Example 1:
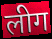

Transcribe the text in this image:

लीग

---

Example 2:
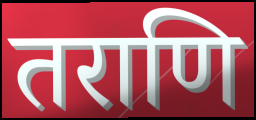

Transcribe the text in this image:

तराणि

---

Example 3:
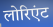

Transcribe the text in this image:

लोरिएंट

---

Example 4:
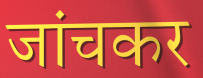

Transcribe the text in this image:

जांचकर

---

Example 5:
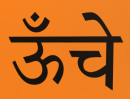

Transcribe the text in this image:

ऊँचे